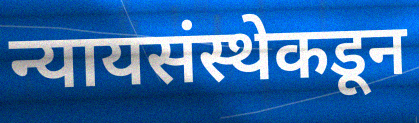
न्यायसंस्थेकडून